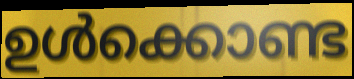
ഉൾക്കൊണ്ട